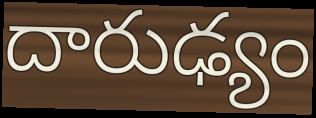
దారుఢ్యం